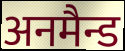
अनमैन्ड